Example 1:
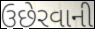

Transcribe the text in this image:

ઉછેરવાની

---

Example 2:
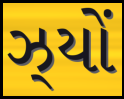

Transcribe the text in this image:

ઝ્યોં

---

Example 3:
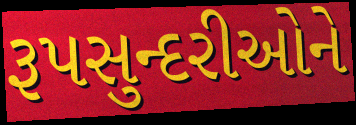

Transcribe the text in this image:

રૂપસુન્દરીઓને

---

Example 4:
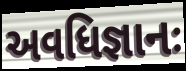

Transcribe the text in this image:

અવધિજ્ઞાનઃ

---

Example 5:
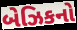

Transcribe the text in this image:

બેઝિકનો